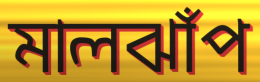
মালঝাঁপ